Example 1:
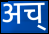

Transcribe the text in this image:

अच्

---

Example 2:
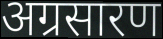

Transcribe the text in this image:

अग्रसारण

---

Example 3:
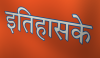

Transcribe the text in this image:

इतिहासके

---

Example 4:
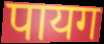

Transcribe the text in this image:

पायग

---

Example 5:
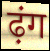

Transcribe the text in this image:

ढ़ंग